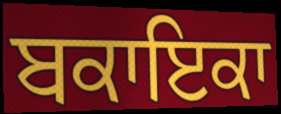
ਬਕਾਇਕਾ